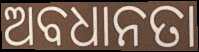
ଅବଧାନତା